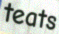
teats